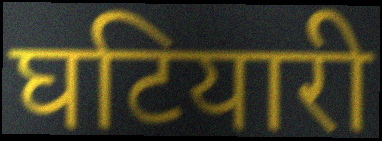
घटियारी